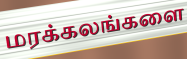
மரக்கலங்களை